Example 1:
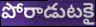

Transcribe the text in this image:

పోరాడుటకై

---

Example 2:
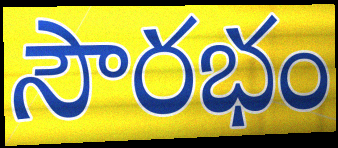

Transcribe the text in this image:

సౌరభం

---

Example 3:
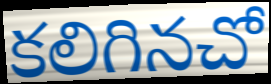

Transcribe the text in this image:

కలిగినచో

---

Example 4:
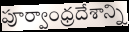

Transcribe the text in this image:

పూర్వాంధ్రదేశాన్ని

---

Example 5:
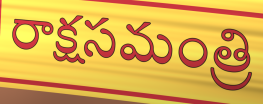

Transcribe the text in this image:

రాక్షసమంత్రి